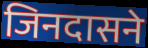
जिनदासने